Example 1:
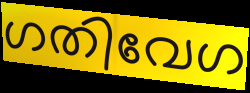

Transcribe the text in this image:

ഗതിവേഗ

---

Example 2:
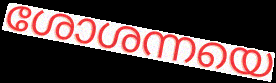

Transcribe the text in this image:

ശോശന്നയെ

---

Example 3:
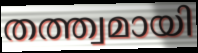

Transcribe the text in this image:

തത്ത്വമായി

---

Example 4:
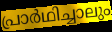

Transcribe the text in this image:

പ്രാർഥിച്ചാലും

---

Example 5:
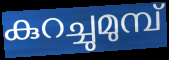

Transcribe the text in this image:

കുറച്ചുമുമ്പ്